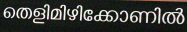
തെളിമിഴിക്കോണിൽ